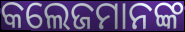
କଲେଜମାନଙ୍କ